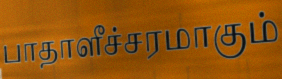
பாதாளீச்சரமாகும்